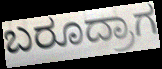
ಬರೂದ್ರಾಗ